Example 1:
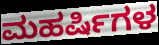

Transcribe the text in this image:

ಮಹರ್ಷಿಗಳ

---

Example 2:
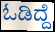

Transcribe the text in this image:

ಓಡಿದ್ದೆ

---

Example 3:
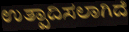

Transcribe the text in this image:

ಉತ್ಪಾದಿಸಲಾಗಿದೆ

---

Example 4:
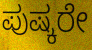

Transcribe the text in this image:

ಪುಷ್ಕರೇ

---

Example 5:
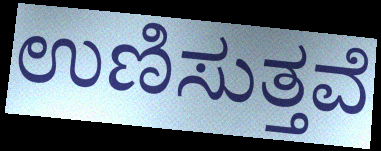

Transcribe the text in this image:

ಉಣಿಸುತ್ತವೆ